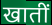
खातीं